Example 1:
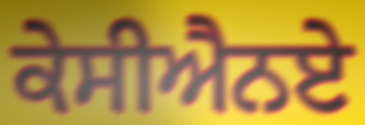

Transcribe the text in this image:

ਕੇਸੀਐਨਏ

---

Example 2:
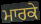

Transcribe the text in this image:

ਮਾਰਕੇ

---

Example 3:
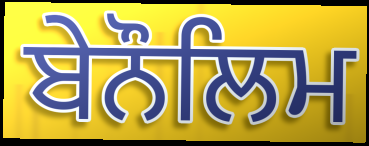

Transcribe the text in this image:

ਬੇਨੌਲਿਮ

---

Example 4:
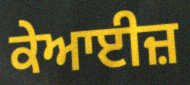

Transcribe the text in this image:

ਕੇਆਈਜ਼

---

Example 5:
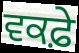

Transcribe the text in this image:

ਵਕਫ਼ੇ